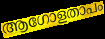
ആഗോളതാപം